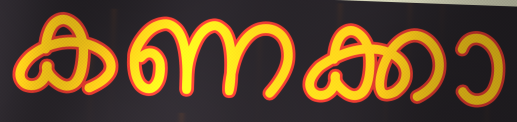
കണക്കാ